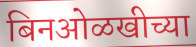
बिनओळखीच्या